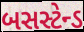
બસસ્ટેન્ડ